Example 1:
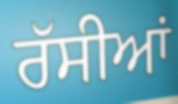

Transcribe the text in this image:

ਰੱਸੀਆਂ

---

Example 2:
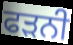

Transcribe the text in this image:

ਫੜਨੀ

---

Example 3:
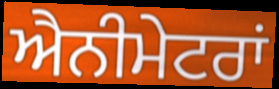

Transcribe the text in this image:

ਐਨੀਮੇਟਰਾਂ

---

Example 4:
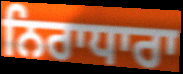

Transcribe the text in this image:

ਨਿਰਾਧਾਰਾ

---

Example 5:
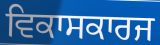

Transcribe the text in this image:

ਵਿਕਾਸਕਾਰਜ